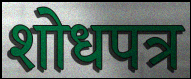
शोधपत्र